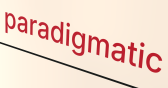
paradigmatic